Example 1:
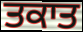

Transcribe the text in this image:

ਤਕਾਤ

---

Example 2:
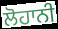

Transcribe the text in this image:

ਲੋਹਾਨੀ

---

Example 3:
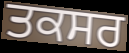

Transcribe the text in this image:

ਤਕਸਰ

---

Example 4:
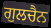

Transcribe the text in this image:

ਗੁਲਚੈਨ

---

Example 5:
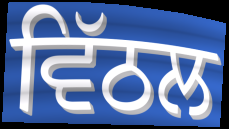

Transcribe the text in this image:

ਵਿੱਠਲ